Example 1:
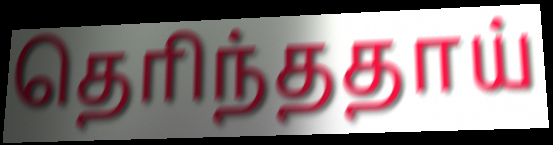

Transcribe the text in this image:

தெரிந்ததாய்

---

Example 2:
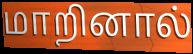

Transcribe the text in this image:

மாறினால்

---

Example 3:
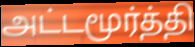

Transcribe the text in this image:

அட்டமூர்த்தி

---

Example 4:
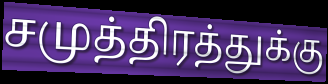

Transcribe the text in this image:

சமுத்திரத்துக்கு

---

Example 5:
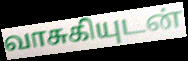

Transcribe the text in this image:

வாசுகியுடன்